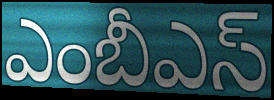
ఎంబీఎస్